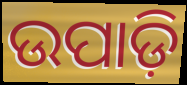
ଉପାଡ଼ି